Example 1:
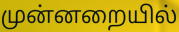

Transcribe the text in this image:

முன்னறையில்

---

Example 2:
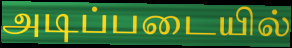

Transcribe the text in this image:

அடிப்படையில்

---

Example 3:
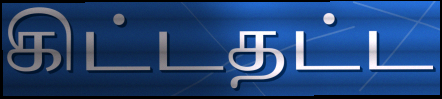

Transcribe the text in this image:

கிட்டதட்ட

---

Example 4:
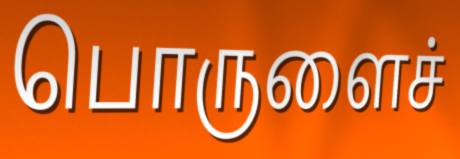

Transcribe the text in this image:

பொருளைச்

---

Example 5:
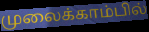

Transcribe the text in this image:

முலைக்காம்பில்